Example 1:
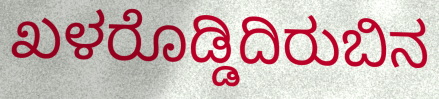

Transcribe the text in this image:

ಖಳರೊಡ್ಡಿದಿರುಬಿನ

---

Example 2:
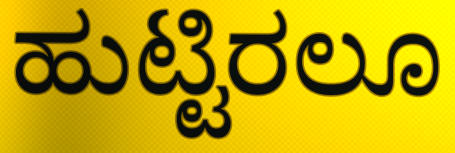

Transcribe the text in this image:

ಹುಟ್ಟಿರಲೂ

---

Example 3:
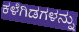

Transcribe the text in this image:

ಕಳೆಗಿಡಗಳನ್ನು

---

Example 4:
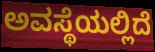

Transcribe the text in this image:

ಅವಸ್ಥೆಯಲ್ಲಿದೆ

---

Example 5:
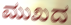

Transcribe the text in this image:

ಮುಖದ